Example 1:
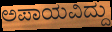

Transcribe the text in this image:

ಅಪಾಯವಿದ್ದು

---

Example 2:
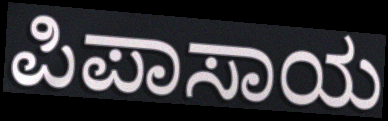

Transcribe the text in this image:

ಪಿಪಾಸಾಯ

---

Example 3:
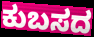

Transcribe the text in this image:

ಕುಬಸದ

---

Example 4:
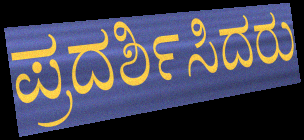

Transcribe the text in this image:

ಪ್ರದರ್ಶಿಸಿದರು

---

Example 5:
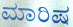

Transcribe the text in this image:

ಮಾರಿಷ